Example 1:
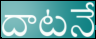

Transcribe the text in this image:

దాటనే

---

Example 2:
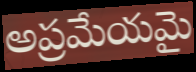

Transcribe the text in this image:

అప్రమేయమై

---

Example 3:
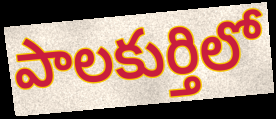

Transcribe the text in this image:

పాలకుర్తిలో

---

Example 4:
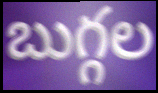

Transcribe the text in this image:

బుగ్గల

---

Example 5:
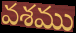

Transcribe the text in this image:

వశము